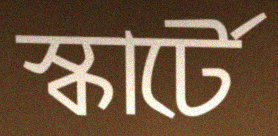
স্কার্টে